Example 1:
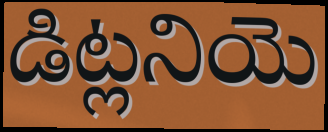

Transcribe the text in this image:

డిట్లనియె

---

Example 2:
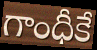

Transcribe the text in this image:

గాంధీకే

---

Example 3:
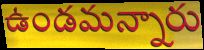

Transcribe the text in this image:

ఉండమన్నారు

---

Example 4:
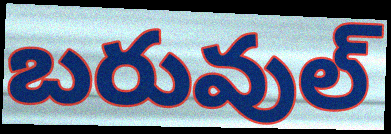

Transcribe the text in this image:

బరువుల్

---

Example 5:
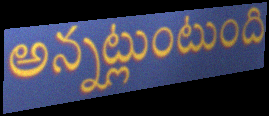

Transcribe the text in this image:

అన్నట్లుంటుంది